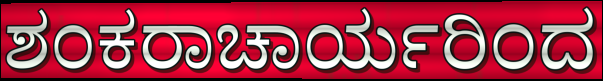
ಶಂಕರಾಚಾರ್ಯರಿಂದ